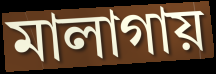
মালাগায়